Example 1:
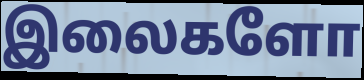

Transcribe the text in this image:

இலைகளோ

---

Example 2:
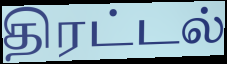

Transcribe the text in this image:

திரட்டல்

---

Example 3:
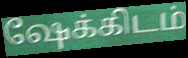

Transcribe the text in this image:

ஷேக்கிடம்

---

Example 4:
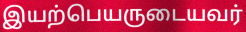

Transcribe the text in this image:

இயற்பெயருடையவர்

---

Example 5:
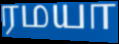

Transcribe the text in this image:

ரமயா